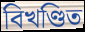
বিখণ্ডিত